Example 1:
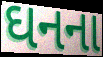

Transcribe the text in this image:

ઘનના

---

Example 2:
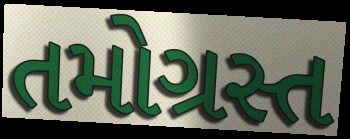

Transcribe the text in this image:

તમોગ્રસ્ત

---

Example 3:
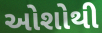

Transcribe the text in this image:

ઓશોથી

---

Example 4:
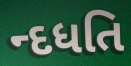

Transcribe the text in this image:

ન્દધતિ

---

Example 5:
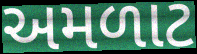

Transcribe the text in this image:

અમળાટ